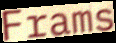
Frams